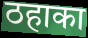
ठहाका